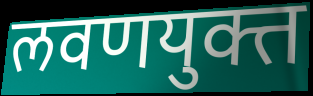
लवणयुक्त